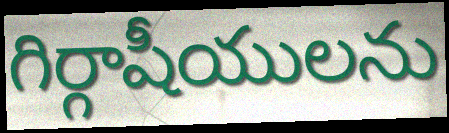
గిర్గాషీయులను